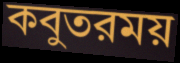
কবুতরময়